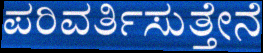
ಪರಿವರ್ತಿಸುತ್ತೇನೆ